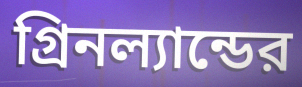
গ্রিনল্যান্ডের